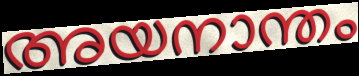
അയനാന്തം